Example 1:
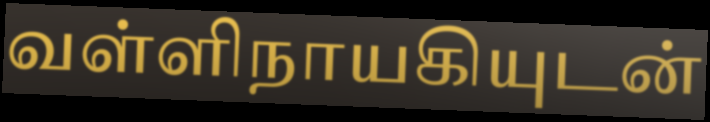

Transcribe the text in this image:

வள்ளிநாயகியுடன்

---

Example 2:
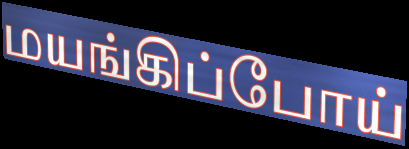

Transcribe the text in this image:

மயங்கிப்போய்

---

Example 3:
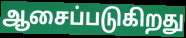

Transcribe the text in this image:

ஆசைப்படுகிறது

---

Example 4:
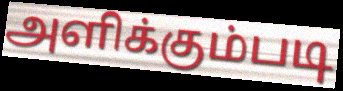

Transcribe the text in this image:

அளிக்கும்படி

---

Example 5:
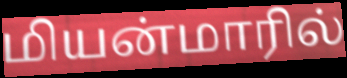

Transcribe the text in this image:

மியன்மாரில்